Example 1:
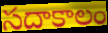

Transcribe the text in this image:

సదాకాలం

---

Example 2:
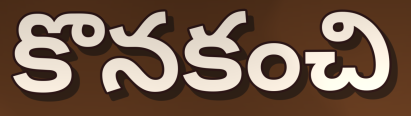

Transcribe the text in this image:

కొనకంచి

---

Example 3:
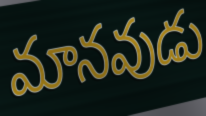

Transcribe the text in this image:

మానవుడు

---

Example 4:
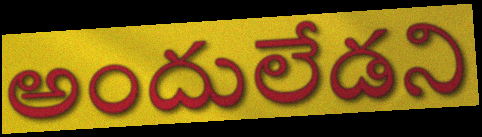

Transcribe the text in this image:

అందులేడని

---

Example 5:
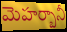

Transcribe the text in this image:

మెహర్బానీ